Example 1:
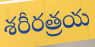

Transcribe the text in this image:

శరీరత్రయ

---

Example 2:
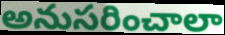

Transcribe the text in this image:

అనుసరించాలా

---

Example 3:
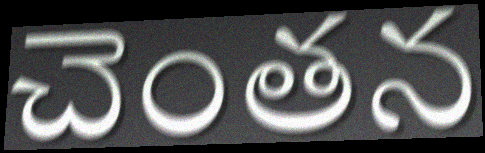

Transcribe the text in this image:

చెంతన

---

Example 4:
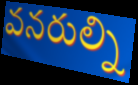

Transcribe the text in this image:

వనరుల్ని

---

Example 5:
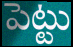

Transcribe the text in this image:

పెట్టు